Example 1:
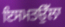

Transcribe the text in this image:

ਇਸਮਤਉੱਲਾ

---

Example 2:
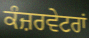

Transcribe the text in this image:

ਕੰਜ਼ਰਵੇਟਰਾਂ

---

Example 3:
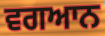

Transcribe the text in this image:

ਵਗਆਨ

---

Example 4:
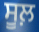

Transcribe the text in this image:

ਸੂਲ਼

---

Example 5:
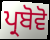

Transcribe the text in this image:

ਪ੍ਰਬੋਵੋ